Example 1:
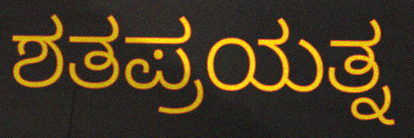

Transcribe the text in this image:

ಶತಪ್ರಯತ್ನ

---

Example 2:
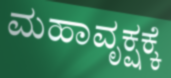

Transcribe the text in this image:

ಮಹಾವೃಕ್ಷಕ್ಕೆ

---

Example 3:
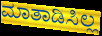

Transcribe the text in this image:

ಮಾತಾಡಿಸಿಲ್ಲ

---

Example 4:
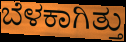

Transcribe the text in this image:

ಬೆಳಕಾಗಿತ್ತು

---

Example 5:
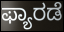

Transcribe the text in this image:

ಫ್ಯಾರಡೆ